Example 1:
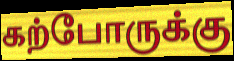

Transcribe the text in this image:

கற்போருக்கு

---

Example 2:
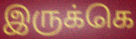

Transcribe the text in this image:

இருக்கெ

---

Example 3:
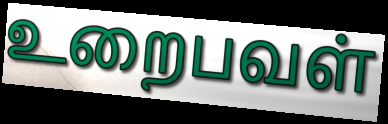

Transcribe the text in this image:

உறைபவள்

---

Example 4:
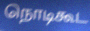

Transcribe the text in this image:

நொடிகூட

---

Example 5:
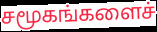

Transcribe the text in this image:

சமூகங்களைச்